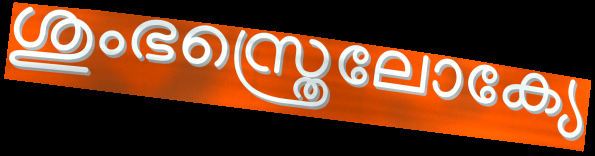
ശുംഭസ്ത്രെലോക്യേ